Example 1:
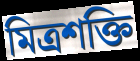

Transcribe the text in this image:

মিত্ৰশক্তি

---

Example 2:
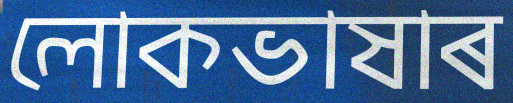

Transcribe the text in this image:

লোকভাষাৰ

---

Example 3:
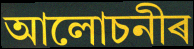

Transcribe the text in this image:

আলোচনীৰ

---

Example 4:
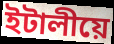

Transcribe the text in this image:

ইটালীয়ে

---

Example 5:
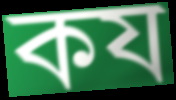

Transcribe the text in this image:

কয